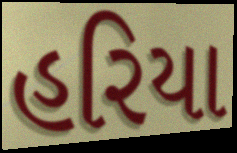
હરિયા